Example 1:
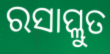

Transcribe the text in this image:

ରସାପ୍ଲୁତ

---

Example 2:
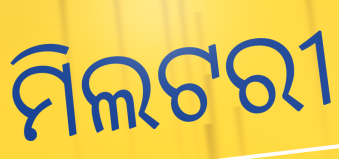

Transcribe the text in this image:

ମିଲଟରୀ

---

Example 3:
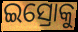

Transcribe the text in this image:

ଇସ୍ରୋକୁ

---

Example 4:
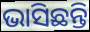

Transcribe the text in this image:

ଭାସିଛନ୍ତି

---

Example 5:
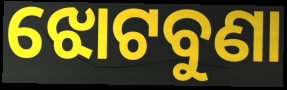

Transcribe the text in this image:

ଝୋଟବୁଣା